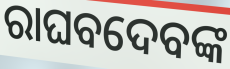
ରାଘବଦେବଙ୍କ